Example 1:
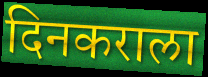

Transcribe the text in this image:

दिनकराला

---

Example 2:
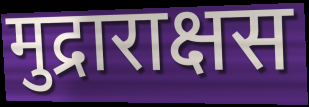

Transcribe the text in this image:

मुद्राराक्षस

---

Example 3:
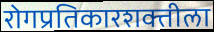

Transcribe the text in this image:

रोगप्रतिकारशक्तीला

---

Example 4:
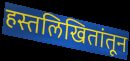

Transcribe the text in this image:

हस्तलिखितांतून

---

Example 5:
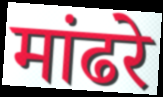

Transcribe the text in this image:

मांढरे